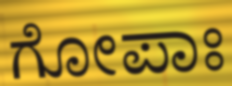
ಗೋಪಾಃ